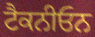
ਟੈਕਨੀਓਨ